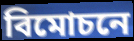
বিমোচনে